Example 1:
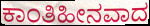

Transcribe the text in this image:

ಕಾಂತಿಹೀನವಾದ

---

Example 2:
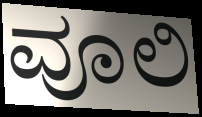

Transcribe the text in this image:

ವೂಲಿ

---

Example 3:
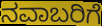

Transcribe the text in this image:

ನವಾಬರಿಗೆ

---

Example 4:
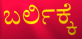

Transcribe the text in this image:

ಬರ್ಲಿಕ್ಕೆ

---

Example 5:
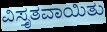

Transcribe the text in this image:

ವಿಸ್ತೃತವಾಯಿತು